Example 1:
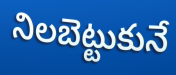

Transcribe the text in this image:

నిలబెట్టుకునే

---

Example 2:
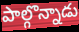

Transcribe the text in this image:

పాల్గొన్నాడు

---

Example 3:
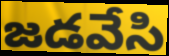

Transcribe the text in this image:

జడవేసి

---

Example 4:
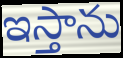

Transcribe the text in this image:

ఇస్తాను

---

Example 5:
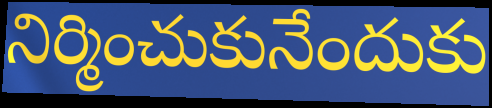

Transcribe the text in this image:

నిర్మించుకునేందుకు